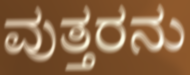
ವುತ್ತರನು